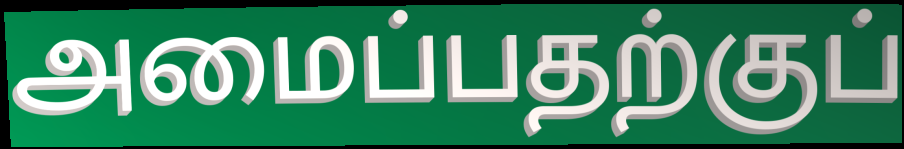
அமைப்பதற்குப்